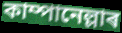
কাম্পানেল্লাৰ